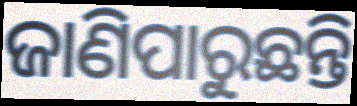
ଜାଣିପାରୁଛନ୍ତି